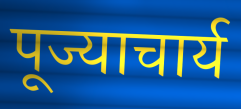
पूज्याचार्य